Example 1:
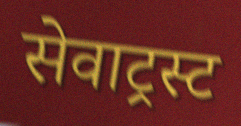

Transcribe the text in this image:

सेवाट्रस्ट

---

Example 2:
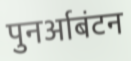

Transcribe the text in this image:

पुनर्आबंटन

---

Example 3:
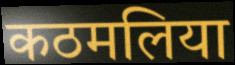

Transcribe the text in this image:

कठमलिया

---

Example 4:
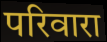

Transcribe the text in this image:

परिवारा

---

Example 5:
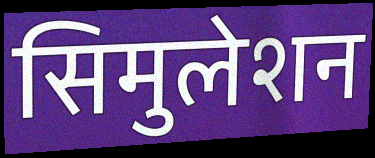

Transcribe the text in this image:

सिमुलेशन